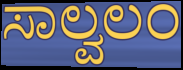
ಸಾಲ್ವಲಂ